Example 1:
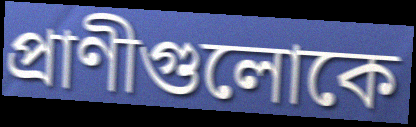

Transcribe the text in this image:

প্রাণীগুলোকে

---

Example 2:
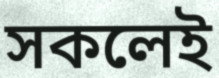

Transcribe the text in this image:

সকলেই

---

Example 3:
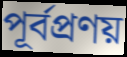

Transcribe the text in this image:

পূর্বপ্রণয়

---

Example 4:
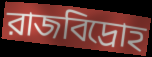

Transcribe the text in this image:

রাজবিদ্রোহ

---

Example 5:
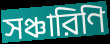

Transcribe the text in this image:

সঞ্চারিণি